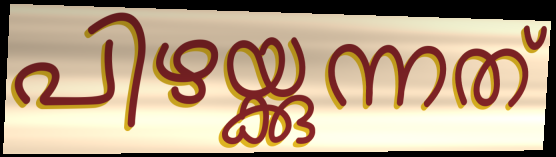
പിഴയ്ക്കുന്നത്